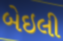
બેઇલી